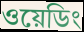
ওয়েডিং